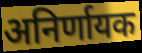
अनिर्णायक